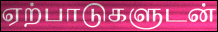
ஏற்பாடுகளுடன்